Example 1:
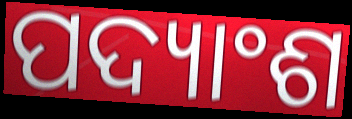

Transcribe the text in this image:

ପଦ୍ୟାଂଶ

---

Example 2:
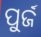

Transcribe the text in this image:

ପୁର୍ଜ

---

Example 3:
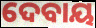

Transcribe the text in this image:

ଦେବାୟ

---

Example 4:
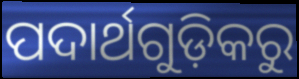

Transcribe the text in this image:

ପଦାର୍ଥଗୁଡ଼ିକରୁ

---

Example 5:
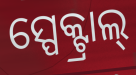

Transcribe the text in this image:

ସ୍ପେକ୍ଟ୍ରାଲ୍